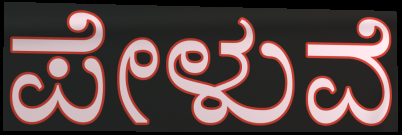
ಪೇಳುವೆ